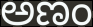
ಅಣಂ